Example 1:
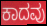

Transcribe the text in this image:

ಕಾದವು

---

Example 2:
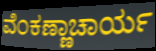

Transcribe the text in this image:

ವೆಂಕಣ್ಣಾಚಾರ್ಯ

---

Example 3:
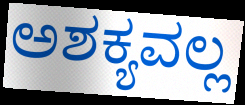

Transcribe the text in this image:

ಅಶಕ್ಯವಲ್ಲ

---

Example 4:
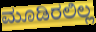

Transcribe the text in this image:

ಮೂಡಿರಲಿಲ್ಲ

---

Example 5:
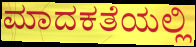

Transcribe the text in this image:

ಮಾದಕತೆಯಲ್ಲಿ